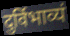
दुर्विभाव्यं